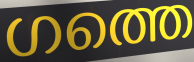
ഗത്തെ